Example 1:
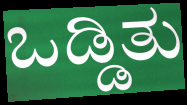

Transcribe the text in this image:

ಒಡ್ಡಿತು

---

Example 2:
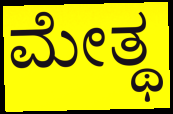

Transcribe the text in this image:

ಮೇತ್ಥ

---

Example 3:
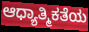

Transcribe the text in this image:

ಆಧ್ಯಾತ್ಮಿಕತೆಯ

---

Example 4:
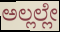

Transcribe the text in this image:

ಅಲ್ಲಲ್ಲೇ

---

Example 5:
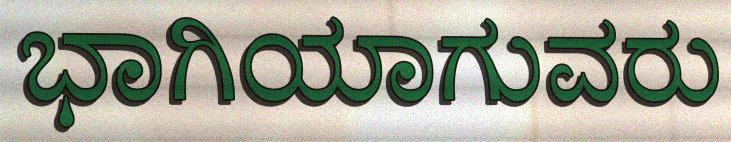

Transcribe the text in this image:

ಭಾಗಿಯಾಗುವರು